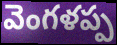
వెంగళప్ప